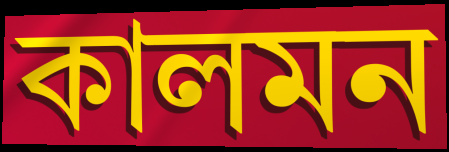
কালমন